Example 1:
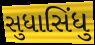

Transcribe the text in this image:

સુધાસિંધુ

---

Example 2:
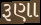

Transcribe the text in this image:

રૂણા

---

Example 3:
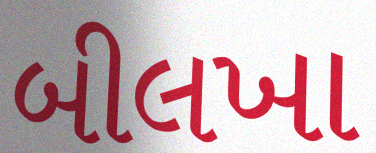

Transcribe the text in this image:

બીલખા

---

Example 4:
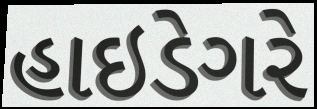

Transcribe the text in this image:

હાઇડેગરે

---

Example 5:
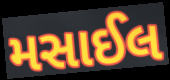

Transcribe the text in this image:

મસાઈલ